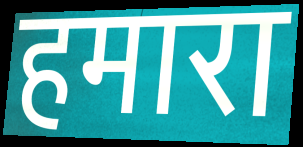
हमारा